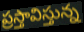
ప్రస్తావిస్తున్న